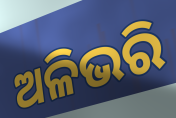
ଅଳିଭରି